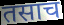
तसाच